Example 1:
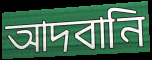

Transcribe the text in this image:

আদবানি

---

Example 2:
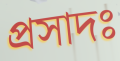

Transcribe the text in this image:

প্রসাদঃ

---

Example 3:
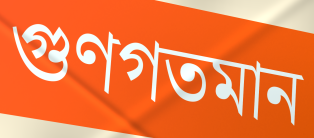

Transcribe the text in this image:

গুণগতমান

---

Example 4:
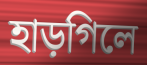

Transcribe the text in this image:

হাড়গিলে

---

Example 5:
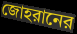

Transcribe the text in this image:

জোহরানের